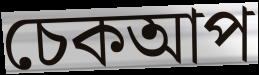
চেকআপ